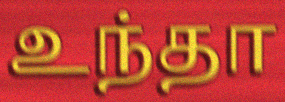
உந்தா